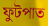
ফুটপাত